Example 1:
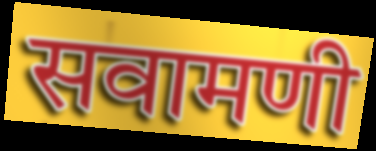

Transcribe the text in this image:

सवामणी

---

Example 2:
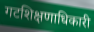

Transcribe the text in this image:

गटशिक्षणाधिकारी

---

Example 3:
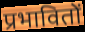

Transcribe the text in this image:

प्रभावितों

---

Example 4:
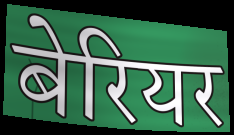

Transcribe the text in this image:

बेरियर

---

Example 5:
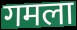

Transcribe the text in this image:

गमला